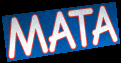
MATA